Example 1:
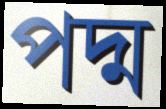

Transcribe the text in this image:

পদ্ম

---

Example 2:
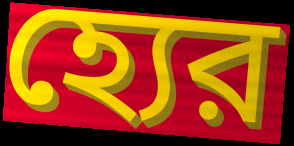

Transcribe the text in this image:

হ্যের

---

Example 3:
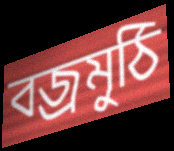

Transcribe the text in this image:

বজ্রমুঠি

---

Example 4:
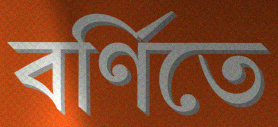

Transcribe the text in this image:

বর্ণিতে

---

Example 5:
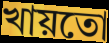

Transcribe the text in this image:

খায়তো